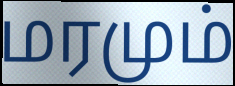
மரமும்